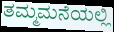
ತಮ್ಮಮನೆಯಲ್ಲಿ